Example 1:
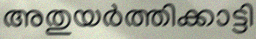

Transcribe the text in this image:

അതുയർത്തിക്കാട്ടി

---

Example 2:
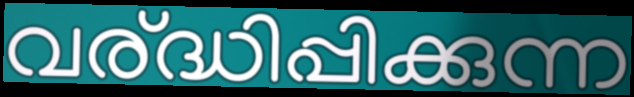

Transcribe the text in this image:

വര്ദ്ധിപ്പിക്കുന്ന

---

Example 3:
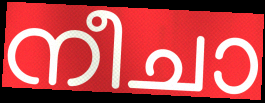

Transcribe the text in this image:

നീചാ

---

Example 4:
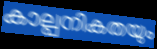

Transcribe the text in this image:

കാല്പനികതയും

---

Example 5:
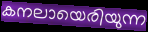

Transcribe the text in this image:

കനലായെരിയുന്ന